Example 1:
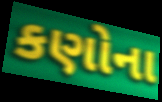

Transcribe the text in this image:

કણોના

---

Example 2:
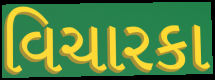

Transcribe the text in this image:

વિચારકા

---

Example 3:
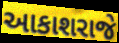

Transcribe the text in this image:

આકાશરાજે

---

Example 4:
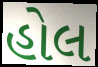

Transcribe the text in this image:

હોલ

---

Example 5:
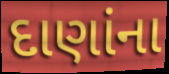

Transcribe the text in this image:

દાણાંના